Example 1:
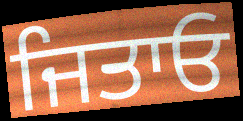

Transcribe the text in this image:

ਜਿਤਾਓ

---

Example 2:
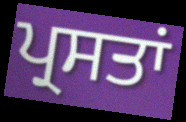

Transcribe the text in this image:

ਪ੍ਰਸਤਾਂ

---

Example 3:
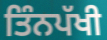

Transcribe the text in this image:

ਤਿੰਨਪੱਖੀ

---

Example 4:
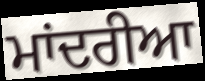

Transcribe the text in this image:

ਮਾਂਦਰੀਆ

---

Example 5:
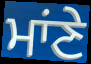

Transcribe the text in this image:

ਮਾਂਣੇ